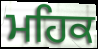
ਮਹਿਕ